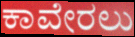
ಕಾವೇರಲು